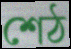
শেঠ